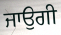
ਜਾਉਗੀ